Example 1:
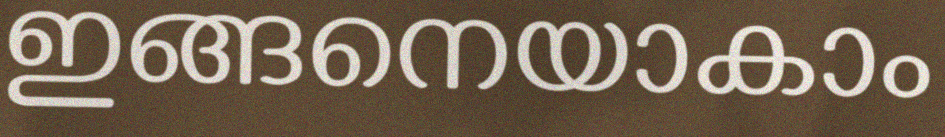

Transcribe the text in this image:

ഇങ്ങനെയാകാം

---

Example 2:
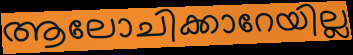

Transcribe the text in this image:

ആലോചിക്കാറേയില്ല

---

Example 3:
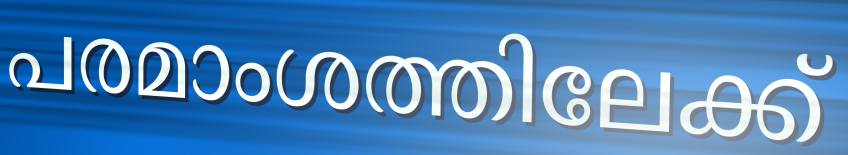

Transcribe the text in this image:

പരമാംശത്തിലേക്ക്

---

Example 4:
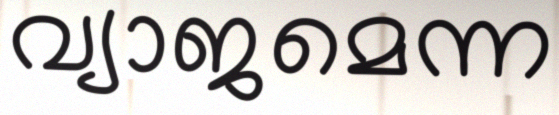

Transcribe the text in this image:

വ്യാജമെന്ന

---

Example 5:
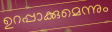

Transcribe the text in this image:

ഉറപ്പാക്കുമെന്നും